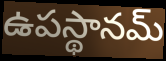
ఉపస్థానమ్